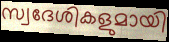
സ്വദേശികളുമായി